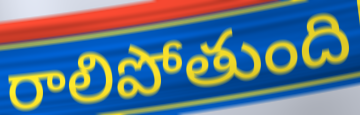
రాలిపోతుంది